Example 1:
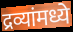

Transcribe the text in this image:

द्रव्यांमध्ये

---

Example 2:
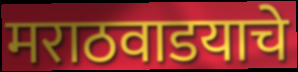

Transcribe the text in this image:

मराठवाडयाचे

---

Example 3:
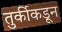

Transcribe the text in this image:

तुर्कीकडून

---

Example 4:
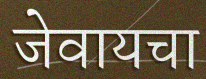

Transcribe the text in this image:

जेवायचा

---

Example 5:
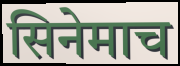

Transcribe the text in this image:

सिनेमाच